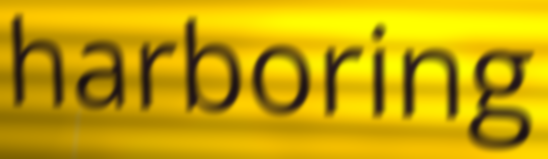
harboring